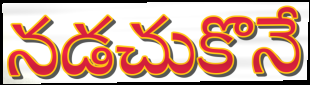
నడచుకొనే